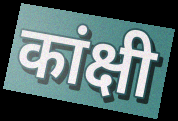
कांक्षी